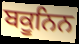
ਬਕੂਨਿਨ